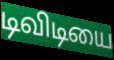
டிவிடியை